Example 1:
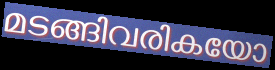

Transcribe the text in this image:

മടങ്ങിവരികയോ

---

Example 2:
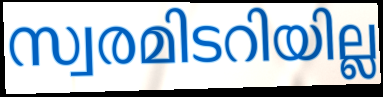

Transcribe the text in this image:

സ്വരമിടറിയില്ല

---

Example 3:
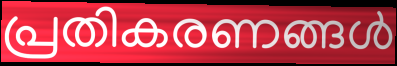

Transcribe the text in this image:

പ്രതികരണങ്ങൾ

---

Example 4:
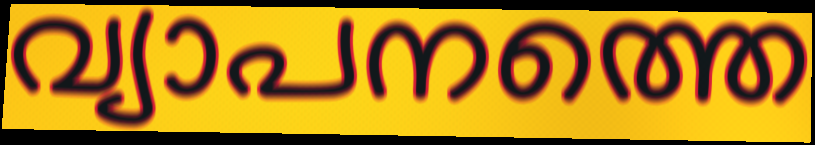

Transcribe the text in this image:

വ്യാപനത്തെ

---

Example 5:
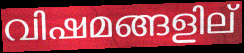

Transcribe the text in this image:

വിഷമങ്ങളില്